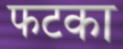
फटका